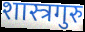
शास्त्रगुरु